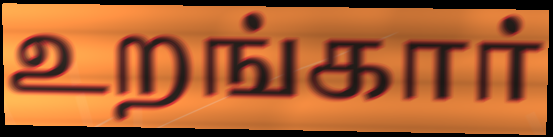
உறங்கார்